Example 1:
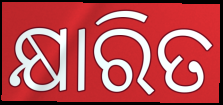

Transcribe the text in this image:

କ୍ଷାରିତ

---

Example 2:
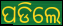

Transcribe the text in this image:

ପଡିଲେ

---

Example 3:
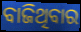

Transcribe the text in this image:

ବାଜିଥିବାର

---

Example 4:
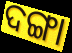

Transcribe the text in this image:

ଦଙ୍ଗା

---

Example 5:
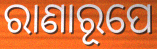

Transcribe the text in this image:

ରାଣାରୂପେ